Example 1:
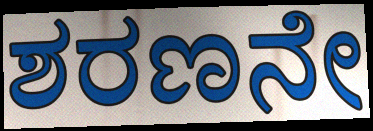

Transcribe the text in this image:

ಶರಣನೇ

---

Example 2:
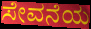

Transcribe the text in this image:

ಸೇವನೆಯ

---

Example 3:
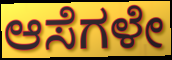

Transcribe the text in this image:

ಆಸೆಗಳೇ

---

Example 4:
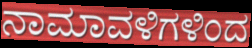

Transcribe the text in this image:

ನಾಮಾವಳಿಗಳಿಂದ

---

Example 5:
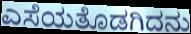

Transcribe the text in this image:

ಎಸೆಯತೊಡಗಿದನು